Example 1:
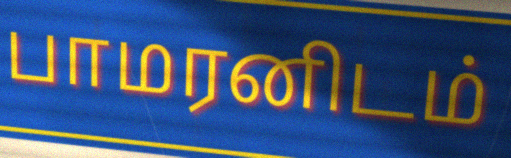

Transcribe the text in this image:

பாமரனிடம்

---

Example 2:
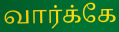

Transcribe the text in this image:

வார்க்கே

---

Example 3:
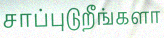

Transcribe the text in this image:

சாப்புடுறீங்களா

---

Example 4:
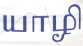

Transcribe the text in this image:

யாழி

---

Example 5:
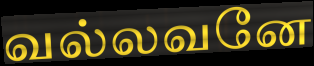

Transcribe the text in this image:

வல்லவனே